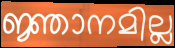
ജ്ഞാനമില്ല